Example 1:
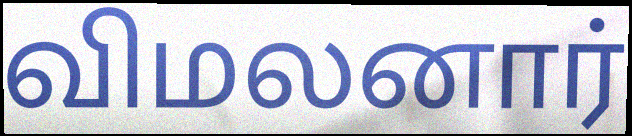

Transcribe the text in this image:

விமலனார்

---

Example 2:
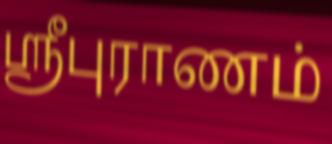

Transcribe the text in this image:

ஸ்ரீபுராணம்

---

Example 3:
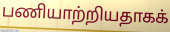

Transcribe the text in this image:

பணியாற்றியதாகக்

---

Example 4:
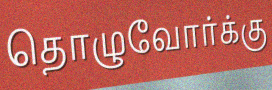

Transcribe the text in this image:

தொழுவோர்க்கு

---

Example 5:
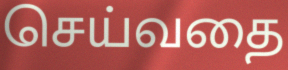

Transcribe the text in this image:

செய்வதை